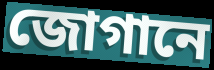
জোগানে